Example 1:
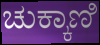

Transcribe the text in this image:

ಚುಕ್ಕಾಣಿ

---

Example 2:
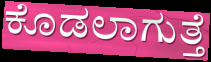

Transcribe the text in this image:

ಕೊಡಲಾಗುತ್ತೆ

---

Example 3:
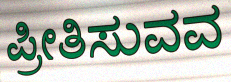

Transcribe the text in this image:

ಪ್ರೀತಿಸುವವ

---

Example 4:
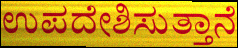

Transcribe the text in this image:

ಉಪದೇಶಿಸುತ್ತಾನೆ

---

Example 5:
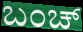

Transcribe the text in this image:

ಬಂಚ್